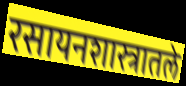
रसायनशास्त्रातले